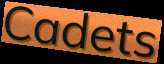
Cadets